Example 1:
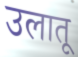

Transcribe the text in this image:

उलातू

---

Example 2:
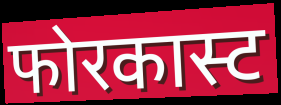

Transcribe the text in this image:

फोरकास्ट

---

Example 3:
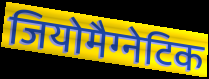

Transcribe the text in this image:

जियोमैग्नेटिक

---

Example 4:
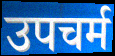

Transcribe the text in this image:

उपचर्म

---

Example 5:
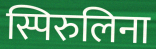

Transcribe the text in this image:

स्पिरुलिना